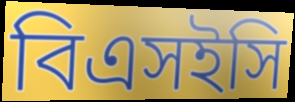
বিএসইসি